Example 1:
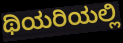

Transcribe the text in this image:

ಥಿಯರಿಯಲ್ಲಿ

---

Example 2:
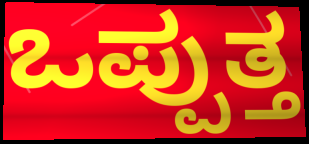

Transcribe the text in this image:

ಒಪ್ಪುತ್ತ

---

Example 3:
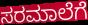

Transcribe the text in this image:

ಸರಮಾಲೆಗೆ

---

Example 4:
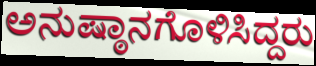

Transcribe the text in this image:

ಅನುಷ್ಠಾನಗೊಳಿಸಿದ್ದರು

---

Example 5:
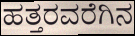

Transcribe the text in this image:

ಹತ್ತರವರೆಗಿನ